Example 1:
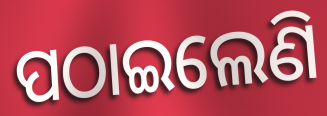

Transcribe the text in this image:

ପଠାଇଲେଣି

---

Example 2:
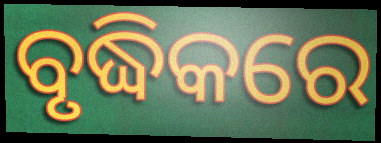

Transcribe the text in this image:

ବୃଦ୍ଧିକରେ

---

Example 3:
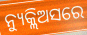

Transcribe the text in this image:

ନ୍ୟୁକ୍ଲିଅସରେ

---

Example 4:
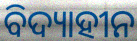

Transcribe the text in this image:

ବିଦ୍ୟାହୀନ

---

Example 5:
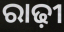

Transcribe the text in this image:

ରାଢ଼ୀ